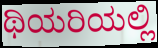
ಥಿಯರಿಯಲ್ಲಿ